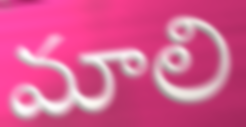
మాలి